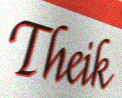
Theik